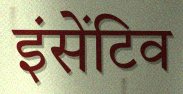
इंसेंटिव